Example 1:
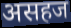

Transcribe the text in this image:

असहज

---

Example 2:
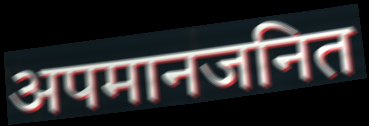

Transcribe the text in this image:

अपमानजनित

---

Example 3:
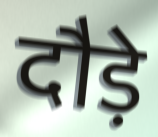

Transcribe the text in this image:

दौड़े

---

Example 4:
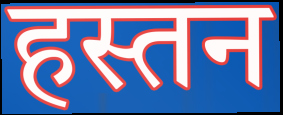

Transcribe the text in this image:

हस्तन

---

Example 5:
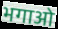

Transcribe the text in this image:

भगाओ